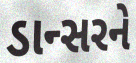
ડાન્સરને